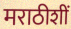
मराठीशीं